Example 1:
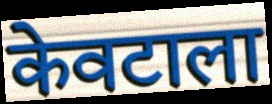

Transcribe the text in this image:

केवटाला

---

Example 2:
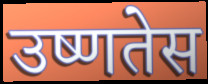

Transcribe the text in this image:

उष्णतेस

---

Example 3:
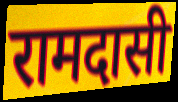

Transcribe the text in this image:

रामदासी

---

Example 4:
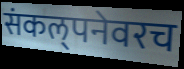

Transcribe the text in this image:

संकल्पनेवरच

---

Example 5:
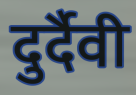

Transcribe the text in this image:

दुर्दैवी